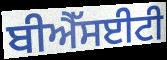
ਬੀਐੱਸਈਟੀ